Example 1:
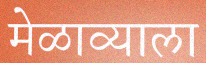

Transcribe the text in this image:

मेळाव्याला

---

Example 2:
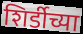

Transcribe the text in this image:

शिर्डीच्या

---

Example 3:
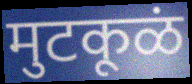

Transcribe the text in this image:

मुटकूळं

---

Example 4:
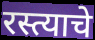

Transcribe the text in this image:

रस्त्याचे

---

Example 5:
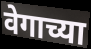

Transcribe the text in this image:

वेगाच्या